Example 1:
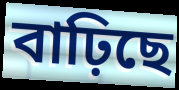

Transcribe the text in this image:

বাঢ়িছে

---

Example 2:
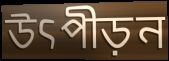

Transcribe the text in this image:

উৎপীড়ন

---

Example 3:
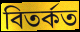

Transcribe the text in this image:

বিতৰ্কত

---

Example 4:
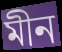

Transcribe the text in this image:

মীন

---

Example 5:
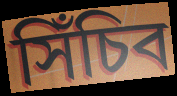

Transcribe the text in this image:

সিঁচিব